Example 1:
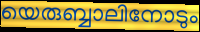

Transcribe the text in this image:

യെരുബ്ബാലിനോടും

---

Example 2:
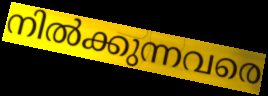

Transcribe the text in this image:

നിൽക്കുന്നവരെ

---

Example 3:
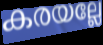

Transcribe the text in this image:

കരയല്ലേ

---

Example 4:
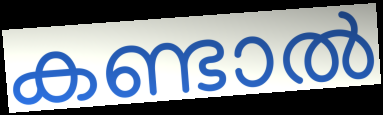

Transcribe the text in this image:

കണ്ടാൽ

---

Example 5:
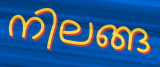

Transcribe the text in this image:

നിലങ്ങ